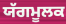
ਯੱਗਮੂਲਕ